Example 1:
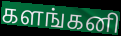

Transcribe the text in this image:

களங்கனி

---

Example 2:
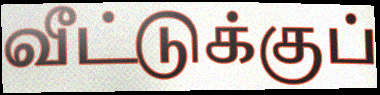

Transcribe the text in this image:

வீட்டுக்குப்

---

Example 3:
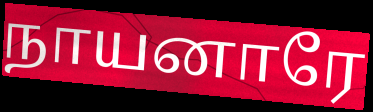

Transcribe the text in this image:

நாயனாரே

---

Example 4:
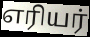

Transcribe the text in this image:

எரியர்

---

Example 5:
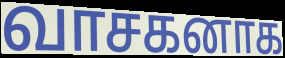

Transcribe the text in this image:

வாசகனாக